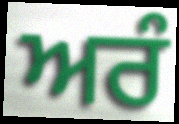
ਅਰੰ